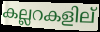
കല്ലറകളില്